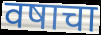
वषाचा